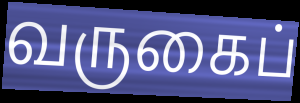
வருகைப்